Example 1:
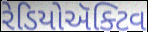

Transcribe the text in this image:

રેડિયોઍક્ટિવ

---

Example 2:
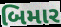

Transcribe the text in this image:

બિમાર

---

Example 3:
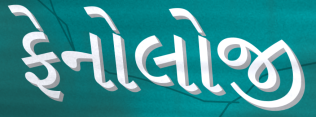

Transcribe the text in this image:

ફેનોલોજી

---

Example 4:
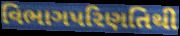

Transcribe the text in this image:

વિભાગપરિણતિથી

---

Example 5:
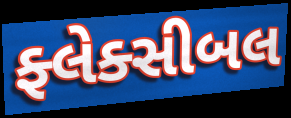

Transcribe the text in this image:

ફ્લેક્સીબલ